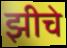
झीचे